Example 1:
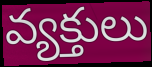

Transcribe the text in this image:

వ్యక్తులు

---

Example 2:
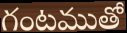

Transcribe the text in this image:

గంటముతో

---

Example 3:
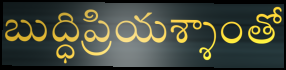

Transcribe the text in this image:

బుద్ధిప్రియశ్శాంతో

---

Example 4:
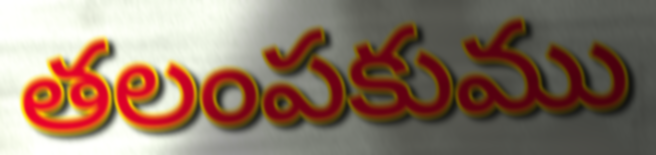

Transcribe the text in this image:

తలంపకుము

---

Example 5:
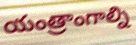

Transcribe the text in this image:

యంత్రాంగాల్ని